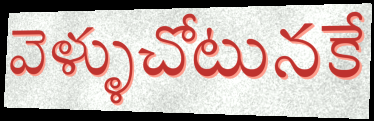
వెళ్ళుచోటునకే